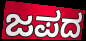
ಜಪದ